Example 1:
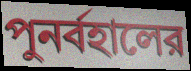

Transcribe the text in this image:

পুনর্বহালের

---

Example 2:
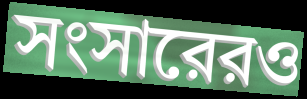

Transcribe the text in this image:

সংসারেরও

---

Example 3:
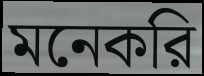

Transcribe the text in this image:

মনেকরি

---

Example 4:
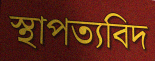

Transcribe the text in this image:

স্থাপত্যবিদ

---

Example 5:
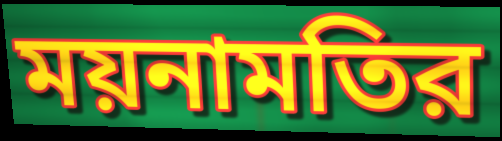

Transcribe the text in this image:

ময়নামতির